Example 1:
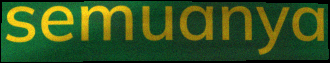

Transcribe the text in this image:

semuanya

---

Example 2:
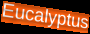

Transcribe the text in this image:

Eucalyptus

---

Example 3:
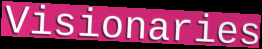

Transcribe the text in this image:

Visionaries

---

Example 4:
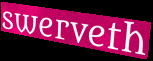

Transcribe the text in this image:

swerveth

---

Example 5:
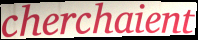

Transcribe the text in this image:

cherchaient